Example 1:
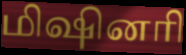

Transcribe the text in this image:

மிஷினரி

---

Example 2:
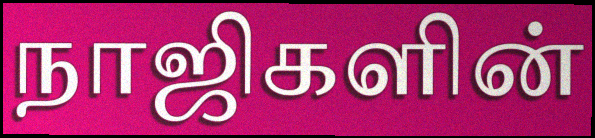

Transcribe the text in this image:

நாஜிகளின்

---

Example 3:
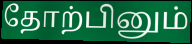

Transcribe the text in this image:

தோற்பினும்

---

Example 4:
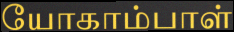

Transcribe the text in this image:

யோகாம்பாள்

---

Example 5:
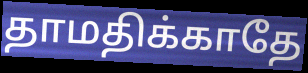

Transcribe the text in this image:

தாமதிக்காதே